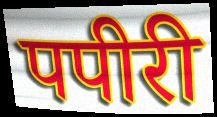
पपीरी